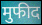
मुफीद